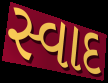
સ્વાદ